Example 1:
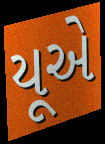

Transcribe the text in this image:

યૂએ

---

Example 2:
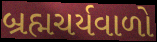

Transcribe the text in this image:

બ્રહ્મચર્યવાળો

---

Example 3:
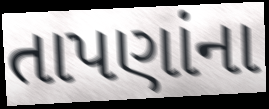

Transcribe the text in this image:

તાપણાંના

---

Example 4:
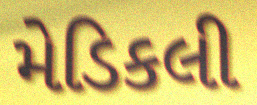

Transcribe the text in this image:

મેડિકલી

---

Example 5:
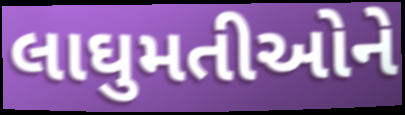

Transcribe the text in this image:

લાઘુમતીઓને